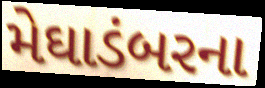
મેઘાડંબરના